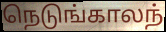
நெடுங்காலந்